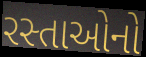
રસ્તાઓનો